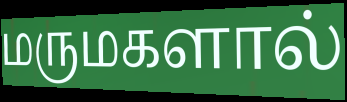
மருமகளால்